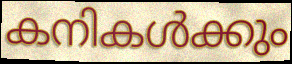
കനികൾക്കും